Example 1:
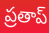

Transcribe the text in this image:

ప్రతాప్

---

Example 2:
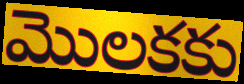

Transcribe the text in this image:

మొలకకు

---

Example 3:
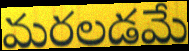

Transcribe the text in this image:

మరలడమే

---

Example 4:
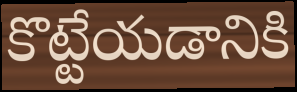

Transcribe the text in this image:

కొట్టేయడానికి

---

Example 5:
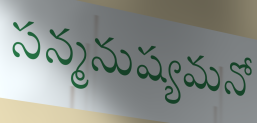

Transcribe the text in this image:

సన్మనుష్యమనో